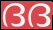
ദദ